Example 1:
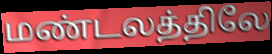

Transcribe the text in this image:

மண்டலத்திலே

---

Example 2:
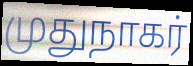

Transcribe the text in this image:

முதுநாகர்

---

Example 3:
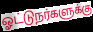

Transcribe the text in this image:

ஓட்டுநர்களுக்கு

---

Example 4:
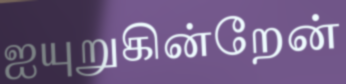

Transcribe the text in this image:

ஐயுறுகின்றேன்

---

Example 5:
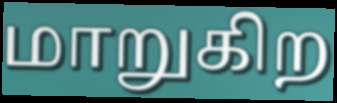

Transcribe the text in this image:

மாறுகிற